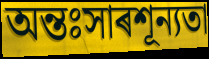
অন্তঃসাৰশূন্যতা